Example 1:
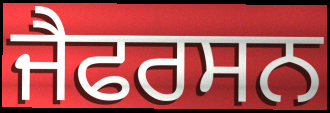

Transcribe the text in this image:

ਜੈਫਰਸਨ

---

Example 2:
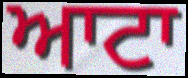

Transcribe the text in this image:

ਆਟਾ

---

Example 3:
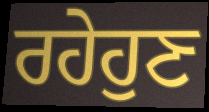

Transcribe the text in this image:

ਰਹੇਹੁਣ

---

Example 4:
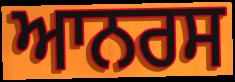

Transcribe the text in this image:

ਆਨਰਸ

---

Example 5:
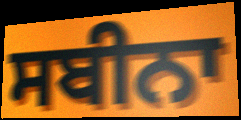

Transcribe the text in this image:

ਸਬੀਨਾ